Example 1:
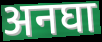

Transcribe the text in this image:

अनघा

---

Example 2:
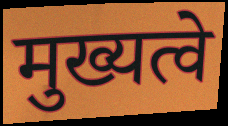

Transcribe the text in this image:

मुख्यत्वे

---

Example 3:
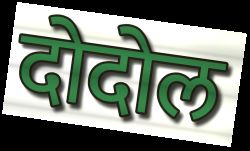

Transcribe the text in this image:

दोदोल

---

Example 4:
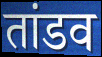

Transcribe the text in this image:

तांडव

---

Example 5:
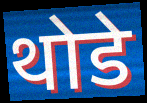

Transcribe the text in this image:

थोडे